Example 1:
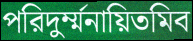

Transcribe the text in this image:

পরিদুর্ম্মনায়িতমিব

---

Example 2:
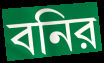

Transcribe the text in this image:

বনির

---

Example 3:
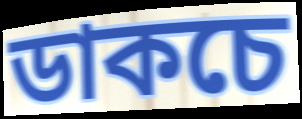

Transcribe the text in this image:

ডাকচে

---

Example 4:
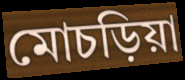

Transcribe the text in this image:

মোচড়িয়া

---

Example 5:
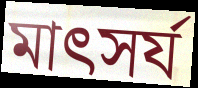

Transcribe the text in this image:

মাৎসর্য